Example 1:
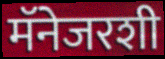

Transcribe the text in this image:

मॅनेजरशी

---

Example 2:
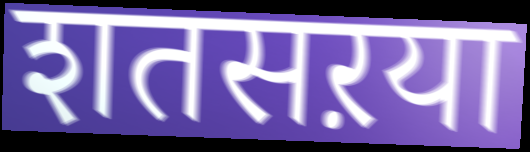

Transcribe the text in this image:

शतसऱया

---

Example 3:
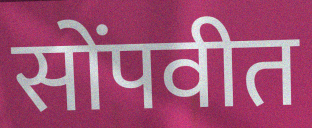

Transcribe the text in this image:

सोंपवीत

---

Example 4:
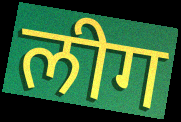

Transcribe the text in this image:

लीग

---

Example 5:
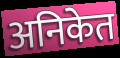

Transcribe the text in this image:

अनिकेत